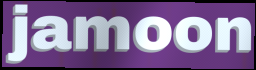
jamoon